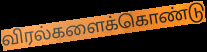
விரல்களைக்கொண்டு